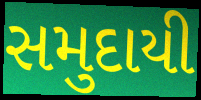
સમુદાયી